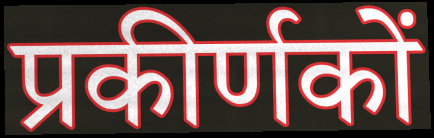
प्रकीर्णकों